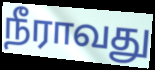
நீராவது